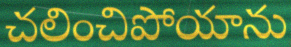
చలించిపోయాను